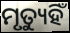
ମୃତ୍ୟୁହିଁ